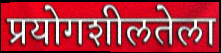
प्रयोगशीलतेला